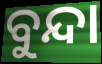
ବୁନ୍ଦା